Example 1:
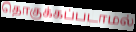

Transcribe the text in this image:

தொகுக்கப்படாமல்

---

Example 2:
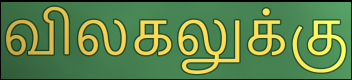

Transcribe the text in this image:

விலகலுக்கு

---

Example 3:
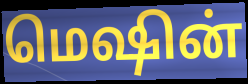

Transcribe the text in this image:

மெஷின்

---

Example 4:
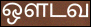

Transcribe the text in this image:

ஔடவ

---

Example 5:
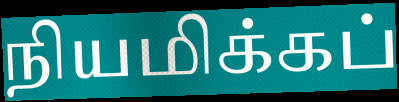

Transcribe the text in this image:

நியமிக்கப்